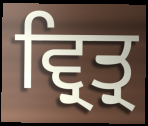
ਵ੍ਰਿਤ੍ਰ